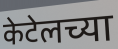
केटेलच्या